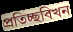
প্ৰতিচ্ছবিখন